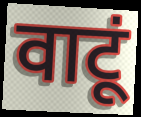
वाटूं